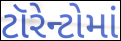
ટૉરેન્ટોમાં